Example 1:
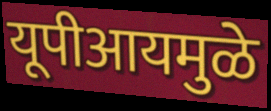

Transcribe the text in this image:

यूपीआयमुळे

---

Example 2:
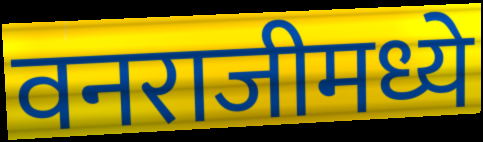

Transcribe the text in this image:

वनराजीमध्ये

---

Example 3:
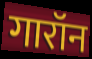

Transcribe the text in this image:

गारॉन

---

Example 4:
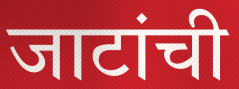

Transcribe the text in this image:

जाटांची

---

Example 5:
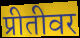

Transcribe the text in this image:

प्रीतीवर